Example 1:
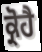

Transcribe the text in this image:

ਕ੍ਰੋਹੈ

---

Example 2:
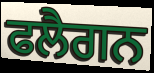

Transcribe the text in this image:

ਫਲੈਗਨ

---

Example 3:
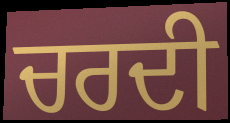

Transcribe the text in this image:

ਚਰਦੀ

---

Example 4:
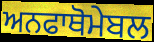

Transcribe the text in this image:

ਅਨਫਾਥੋਮੇਬਲ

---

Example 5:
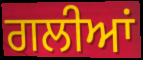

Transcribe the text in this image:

ਗਲੀਆਂ